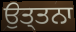
ਉਤ੍ਤਨਾ